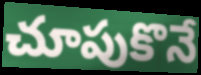
చూపుకొనే